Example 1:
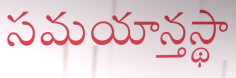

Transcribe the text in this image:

సమయాన్తస్థా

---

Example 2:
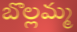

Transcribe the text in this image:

బొల్లమ్మ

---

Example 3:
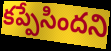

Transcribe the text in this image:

కప్పేసిందని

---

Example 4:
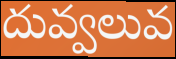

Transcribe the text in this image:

దువ్వలువ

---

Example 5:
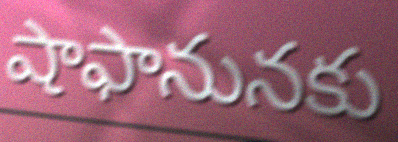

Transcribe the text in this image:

షాఫానునకు